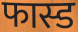
फास्ड